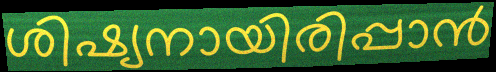
ശിഷ്യനായിരിപ്പാൻ